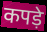
कपड़े